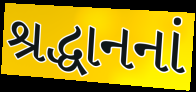
શ્રદ્ધાનનાં